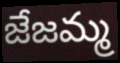
జేజమ్మ